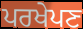
ਪਰਖੇਪਣ